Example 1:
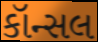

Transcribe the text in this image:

કૉન્સલ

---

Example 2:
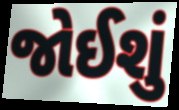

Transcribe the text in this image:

જોઈશું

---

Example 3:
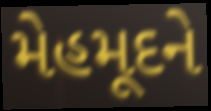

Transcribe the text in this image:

મેહમૂદને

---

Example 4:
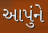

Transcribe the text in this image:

આપુંને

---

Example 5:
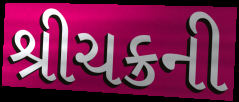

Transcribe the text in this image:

શ્રીચક્રની